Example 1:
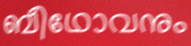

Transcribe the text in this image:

ബീഥോവനും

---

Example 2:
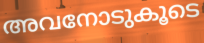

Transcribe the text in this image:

അവനോടുകൂടെ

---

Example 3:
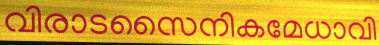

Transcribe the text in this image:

വിരാടസൈനികമേധാവി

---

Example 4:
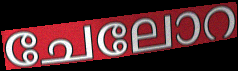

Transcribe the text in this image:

ചേലോറ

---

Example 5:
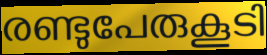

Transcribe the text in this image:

രണ്ടുപേരുകൂടി